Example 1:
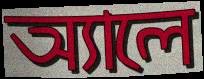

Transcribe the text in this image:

অ্যালে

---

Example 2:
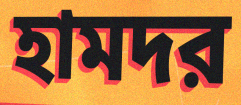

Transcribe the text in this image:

হামদর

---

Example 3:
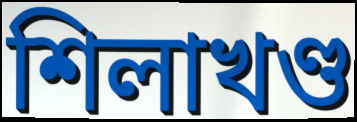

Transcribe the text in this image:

শিলাখণ্ড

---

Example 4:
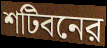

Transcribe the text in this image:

শটিবনের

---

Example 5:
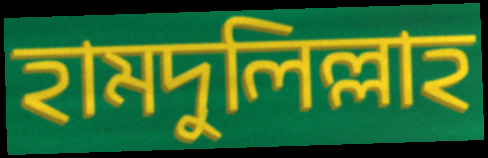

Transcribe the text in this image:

হামদুলিল্লাহ